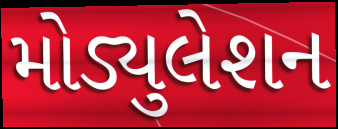
મોડ્યુલેશન